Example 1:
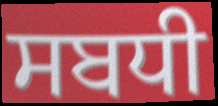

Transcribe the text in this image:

ਸਬਧੀ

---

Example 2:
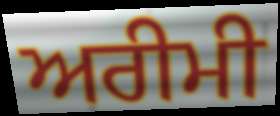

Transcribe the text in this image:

ਅਰੀਮੀ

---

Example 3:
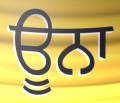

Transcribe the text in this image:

ਊਨਾ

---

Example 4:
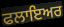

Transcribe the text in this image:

ਫਲਾਇਅਰ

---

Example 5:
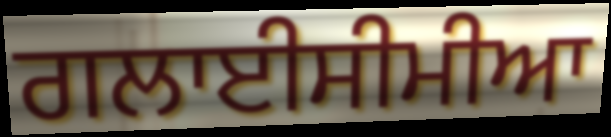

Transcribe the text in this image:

ਗਲਾਈਸੀਮੀਆ